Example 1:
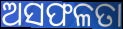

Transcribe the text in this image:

ଅସଫଳତା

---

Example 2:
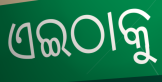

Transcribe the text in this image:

ଏଇଠାକୁ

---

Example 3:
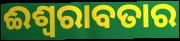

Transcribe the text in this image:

ଈଶ୍ୱରାବତାର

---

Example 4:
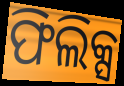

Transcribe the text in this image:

ଫିଲିକ୍ସ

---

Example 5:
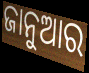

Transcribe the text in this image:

ଜାନୁଆର